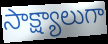
సాక్ష్యాలుగా